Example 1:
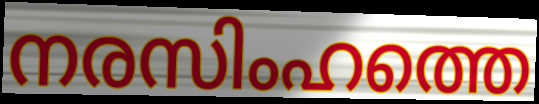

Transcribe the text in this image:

നരസിംഹത്തെ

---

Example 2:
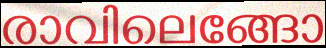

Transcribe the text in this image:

രാവിലെങ്ങോ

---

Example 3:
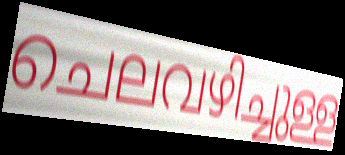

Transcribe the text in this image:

ചെലവഴിച്ചുള്ള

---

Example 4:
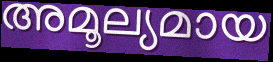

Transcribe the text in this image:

അമൂല്യമായ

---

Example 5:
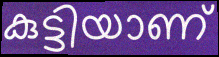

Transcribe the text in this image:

കുട്ടിയാണ്